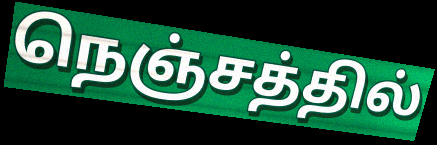
நெஞ்சத்தில்